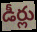
డీర్లు